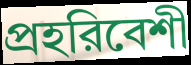
প্রহরিবেশী